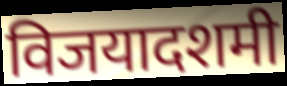
विजयादशमी